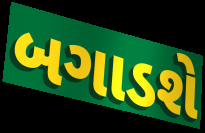
બગાડશે